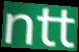
ntt